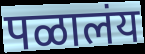
पळालंय